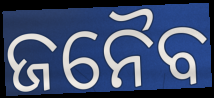
ଜନୈବ